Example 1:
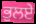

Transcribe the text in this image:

ਭੁਲਏ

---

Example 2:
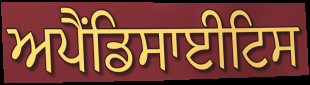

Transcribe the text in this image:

ਅਪੈਂਡਿਸਾਈਟਿਸ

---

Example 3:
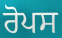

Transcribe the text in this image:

ਰੋਪਸ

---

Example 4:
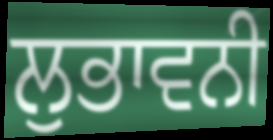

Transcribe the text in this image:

ਲੁਭਾਵਨੀ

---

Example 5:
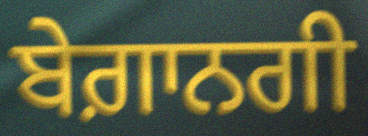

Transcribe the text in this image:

ਬੇਗ਼ਾਨਗੀ